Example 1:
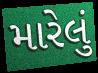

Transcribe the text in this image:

મારેલું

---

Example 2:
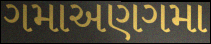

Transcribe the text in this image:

ગમાઅણગમા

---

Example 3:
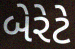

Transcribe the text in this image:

બેરેટે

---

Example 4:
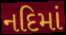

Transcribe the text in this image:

નદિમાં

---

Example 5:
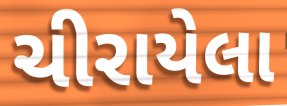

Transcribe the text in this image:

ચીરાયેલા